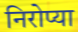
निरोप्या